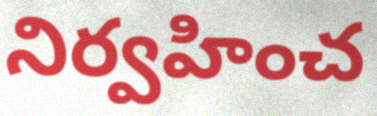
నిర్వహించ